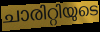
ചാരിറ്റിയുടെ